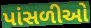
પાંસળીઓ